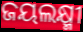
ଜୟଲକ୍ଷ୍ମୀ